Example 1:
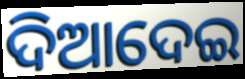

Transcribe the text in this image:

ଦିଆଦେଇ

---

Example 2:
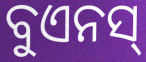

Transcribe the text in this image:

ବୁଏନସ୍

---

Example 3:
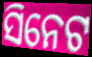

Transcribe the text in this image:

ସିନେଟ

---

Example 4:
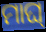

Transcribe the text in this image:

ମାଘ୍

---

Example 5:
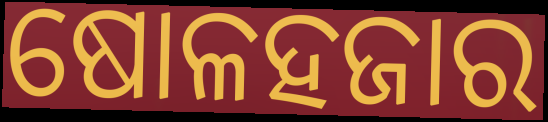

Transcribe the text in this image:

ଷୋଳହଜାର